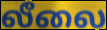
லீலை